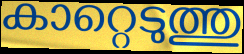
കാറ്റെടുത്തു